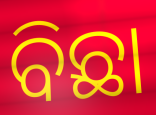
ବିଛା